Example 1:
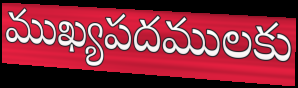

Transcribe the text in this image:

ముఖ్యపదములకు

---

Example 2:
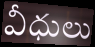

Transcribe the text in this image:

వీధులు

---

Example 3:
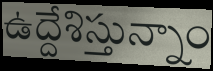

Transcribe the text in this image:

ఉద్దేశిస్తున్నాం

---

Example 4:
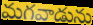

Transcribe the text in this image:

మగవాడును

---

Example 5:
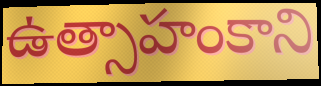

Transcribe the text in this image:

ఉత్సాహంకాని